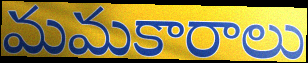
మమకారాలు